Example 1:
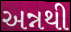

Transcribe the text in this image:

અન્નથી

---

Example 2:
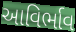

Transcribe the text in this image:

આવિર્ભાવ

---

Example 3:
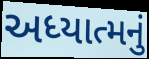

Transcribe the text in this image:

અધ્યાત્મનું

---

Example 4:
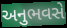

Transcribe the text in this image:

અનુભવસે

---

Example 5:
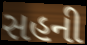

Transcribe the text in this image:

સહની